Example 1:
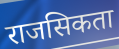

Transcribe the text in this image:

राजसिकता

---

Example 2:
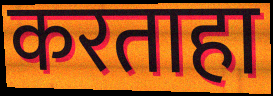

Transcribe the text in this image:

करताहा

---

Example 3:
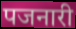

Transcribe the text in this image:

पजनारी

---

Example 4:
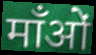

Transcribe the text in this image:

माँओं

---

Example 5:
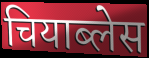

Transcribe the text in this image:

चियाब्लेस